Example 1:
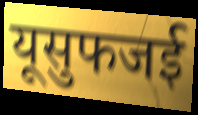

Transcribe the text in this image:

यूसुफजई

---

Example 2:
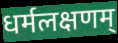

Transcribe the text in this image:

धर्मलक्षणम्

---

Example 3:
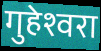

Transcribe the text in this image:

गुहेश्वरा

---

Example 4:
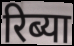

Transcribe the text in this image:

रिब्या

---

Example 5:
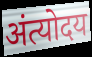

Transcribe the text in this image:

अंत्योदय